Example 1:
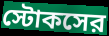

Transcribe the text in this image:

স্টোকসের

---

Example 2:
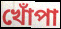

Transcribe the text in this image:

খোঁপা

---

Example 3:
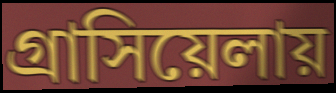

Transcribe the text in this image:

গ্রাসিয়েলায়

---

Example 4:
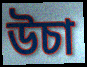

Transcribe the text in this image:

উচা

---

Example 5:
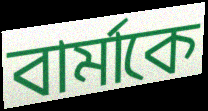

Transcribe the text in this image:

বার্মাকে